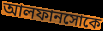
আলফানসোকে